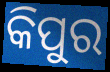
କିପୁର